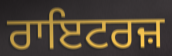
ਰਾਇਟਰਜ਼